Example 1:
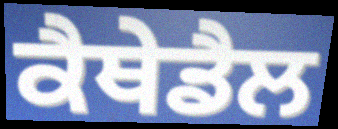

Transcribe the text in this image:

ਕੈਥੇਡੈਲ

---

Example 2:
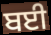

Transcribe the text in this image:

ਬਈ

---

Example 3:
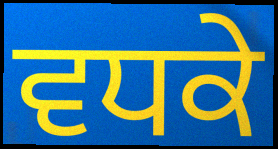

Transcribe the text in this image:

ਵਧਕੇ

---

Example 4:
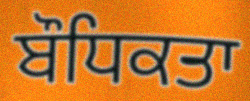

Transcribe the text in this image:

ਬੌਧਿਕਤਾ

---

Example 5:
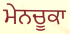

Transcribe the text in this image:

ਮੇਨਚੂਕਾ